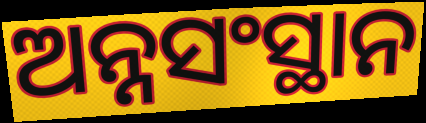
ଅନ୍ନସଂସ୍ଥାନ